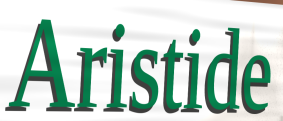
Aristide